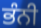
ਭੰਨੀ